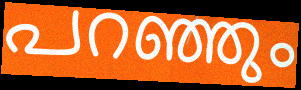
പറഞ്ഞും